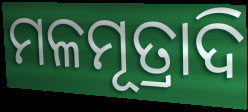
ମଳମୂତ୍ରାଦି